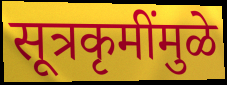
सूत्रकृमींमुळे